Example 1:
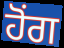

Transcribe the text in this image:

ਹੋੰਗ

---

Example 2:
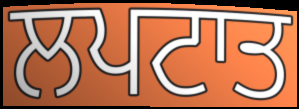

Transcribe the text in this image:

ਲਪਟਾਤ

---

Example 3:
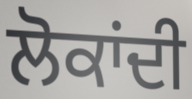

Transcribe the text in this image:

ਲੋਕਾਂਦੀ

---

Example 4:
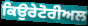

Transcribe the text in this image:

ਕਿਉਰੇਟੋਰੀਅਲ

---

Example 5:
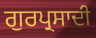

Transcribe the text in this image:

ਗੁਰਪ੍ਰਸਾਦੀ